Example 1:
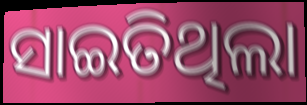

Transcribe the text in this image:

ସାଇତିଥିଲା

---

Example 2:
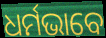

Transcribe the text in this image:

ଧର୍ମଭାବେ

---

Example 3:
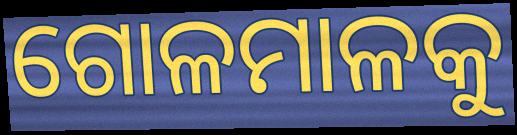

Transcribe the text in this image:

ଗୋଳମାଳକୁ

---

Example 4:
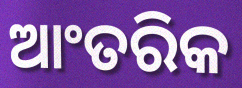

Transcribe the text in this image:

ଆଂତରିକ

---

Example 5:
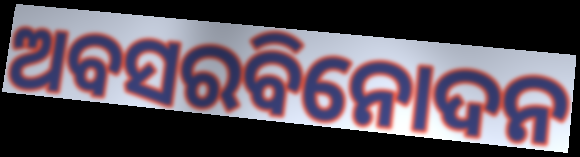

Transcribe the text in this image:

ଅବସରବିନୋଦନ